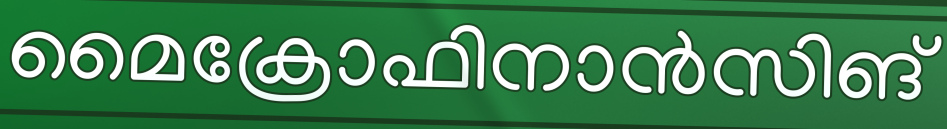
മൈക്രോഫിനാൻസിങ്